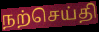
நற்செய்தி